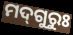
ମଦ୍‌ଗୁରୁଃ